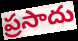
ప్రసాదు